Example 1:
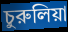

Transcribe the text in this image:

চুরুলিয়া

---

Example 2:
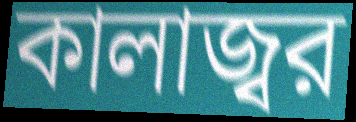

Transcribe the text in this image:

কালাজ্বর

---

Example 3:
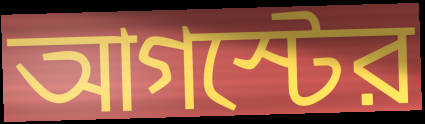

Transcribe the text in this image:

আগস্টের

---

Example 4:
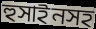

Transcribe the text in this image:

হুসাইনসহ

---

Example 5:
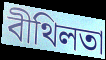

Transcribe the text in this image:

বীথিলতা